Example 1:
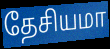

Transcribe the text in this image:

தேசியமா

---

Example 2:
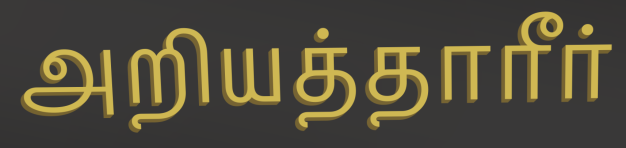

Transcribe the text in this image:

அறியத்தாரீர்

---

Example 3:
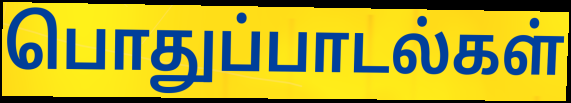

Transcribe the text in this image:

பொதுப்பாடல்கள்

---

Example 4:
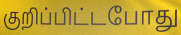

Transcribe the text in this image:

குறிப்பிட்டபோது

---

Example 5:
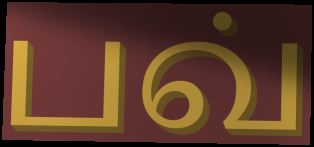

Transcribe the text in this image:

பவ்